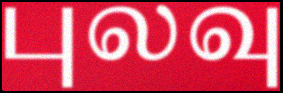
புலவு